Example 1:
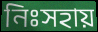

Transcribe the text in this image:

নিঃসহায়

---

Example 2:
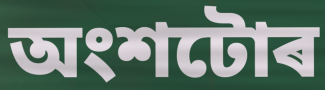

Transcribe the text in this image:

অংশটোৰ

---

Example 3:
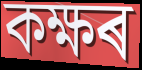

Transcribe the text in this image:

কক্ষৰ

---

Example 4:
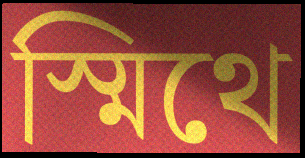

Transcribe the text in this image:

স্মিথে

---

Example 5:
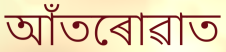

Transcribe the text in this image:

আঁতৰোৱাত